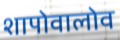
शापोवालोव